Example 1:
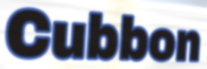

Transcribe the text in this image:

Cubbon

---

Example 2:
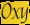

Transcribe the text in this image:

Oxy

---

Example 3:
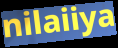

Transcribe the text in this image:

nilaiiya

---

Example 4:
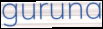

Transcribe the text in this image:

guruna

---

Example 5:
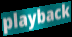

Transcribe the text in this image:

playback